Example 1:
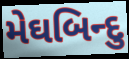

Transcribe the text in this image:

મેઘબિન્દુ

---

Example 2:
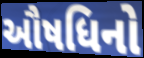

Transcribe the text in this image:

ઔષધિનો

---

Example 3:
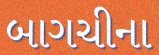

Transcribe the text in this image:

બાગચીના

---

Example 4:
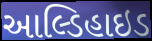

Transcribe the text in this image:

આલ્ડિહાઇડ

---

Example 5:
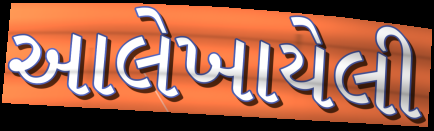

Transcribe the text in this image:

આલેખાયેલી